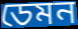
ডেমন